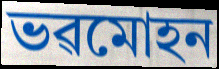
ভৱমোহন